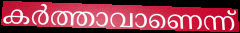
കർത്താവാണെന്ന്